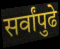
सर्वांपुढे